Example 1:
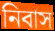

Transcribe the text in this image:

নিবাস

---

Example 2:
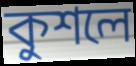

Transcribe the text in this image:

কুশলে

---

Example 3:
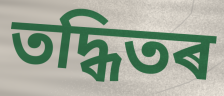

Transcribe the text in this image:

তদ্ধিতৰ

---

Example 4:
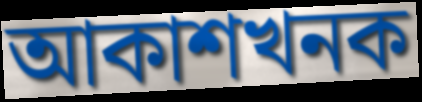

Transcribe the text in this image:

আকাশখনক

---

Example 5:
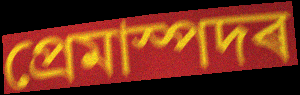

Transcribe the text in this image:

প্ৰেমাস্পদৰ